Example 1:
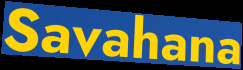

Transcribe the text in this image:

Savahana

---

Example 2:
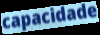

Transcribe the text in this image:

capacidade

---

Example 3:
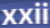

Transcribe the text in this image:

xxii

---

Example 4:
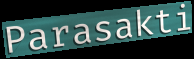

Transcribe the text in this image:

Parasakti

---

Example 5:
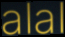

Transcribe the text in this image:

alal